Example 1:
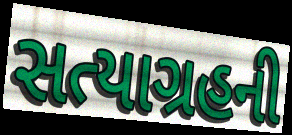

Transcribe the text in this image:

સત્યાગ્રહની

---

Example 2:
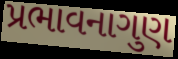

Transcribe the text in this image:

પ્રભાવનાગુણ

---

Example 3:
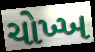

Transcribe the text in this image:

ચોખ્ખ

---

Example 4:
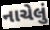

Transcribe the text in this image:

નાચેલું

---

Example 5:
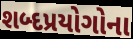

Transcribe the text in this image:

શબ્દપ્રયોગોના